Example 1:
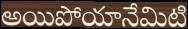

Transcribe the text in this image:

అయిపోయానేమిటి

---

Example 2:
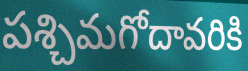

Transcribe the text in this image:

పశ్చిమగోదావరికి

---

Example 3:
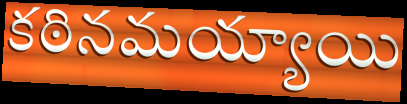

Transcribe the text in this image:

కఠినమయ్యాయి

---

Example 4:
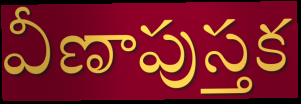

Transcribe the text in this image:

వీణాపుస్తక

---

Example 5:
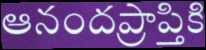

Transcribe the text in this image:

ఆనందప్రాప్తికి